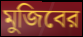
মুজিবের